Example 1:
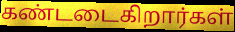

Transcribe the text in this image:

கண்டடைகிறார்கள்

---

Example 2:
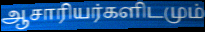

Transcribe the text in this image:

ஆசாரியர்களிடமும்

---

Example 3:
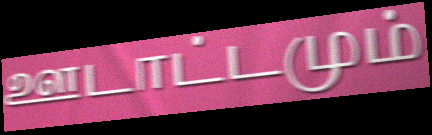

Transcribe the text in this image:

ஊடாட்டமும்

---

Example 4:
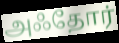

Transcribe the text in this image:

அஃதோர்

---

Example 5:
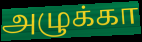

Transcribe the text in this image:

அழுக்கா